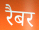
रैबर